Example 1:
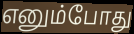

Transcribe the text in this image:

எனும்போது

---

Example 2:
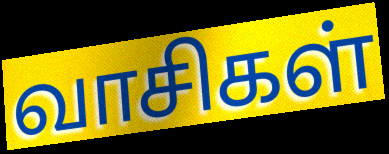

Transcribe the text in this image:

வாசிகள்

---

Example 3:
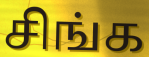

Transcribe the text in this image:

சிங்க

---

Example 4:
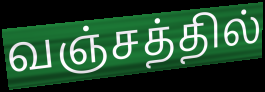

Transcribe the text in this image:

வஞ்சத்தில்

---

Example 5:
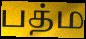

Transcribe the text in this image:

பத்ம